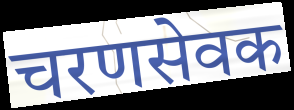
चरणसेवक